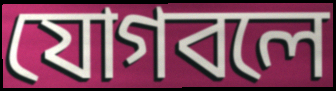
যোগবলে